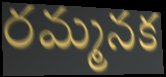
రమ్మనక